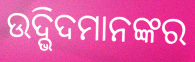
ଉଦ୍ଭିଦମାନଙ୍କର